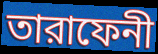
তারাফেনী